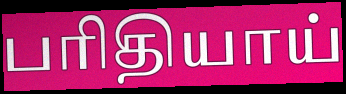
பரிதியாய்